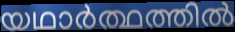
യഥാർത്ഥത്തിൽ